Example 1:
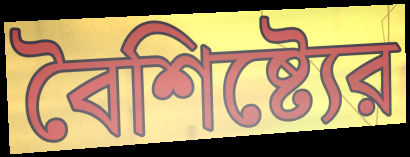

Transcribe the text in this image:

বৈশিষ্ট্যের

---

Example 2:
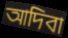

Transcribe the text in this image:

আদিবা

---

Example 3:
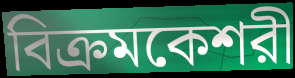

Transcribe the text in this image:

বিক্রমকেশরী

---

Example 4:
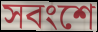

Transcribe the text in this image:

সবংশে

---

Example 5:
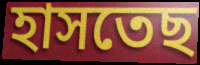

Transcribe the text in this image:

হাসতেছ